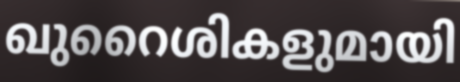
ഖുറൈശികളുമായി